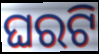
ଘରଟି